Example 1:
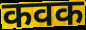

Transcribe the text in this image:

कवक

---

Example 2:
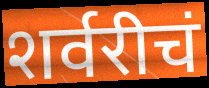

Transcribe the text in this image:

शर्वरीचं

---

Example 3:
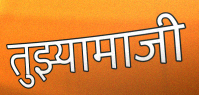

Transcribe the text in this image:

तुझ्यामाजी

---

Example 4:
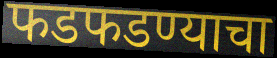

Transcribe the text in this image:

फडफडण्याचा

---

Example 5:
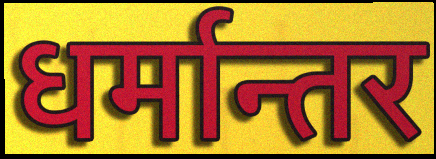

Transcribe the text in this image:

धर्मान्तर